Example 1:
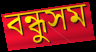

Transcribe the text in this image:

বন্ধুসম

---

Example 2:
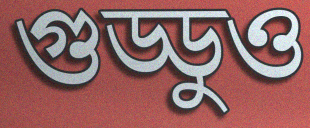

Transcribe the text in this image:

গুড্ডুও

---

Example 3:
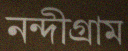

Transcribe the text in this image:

নন্দীগ্রাম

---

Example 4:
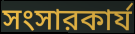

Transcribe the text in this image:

সংসারকার্য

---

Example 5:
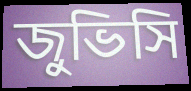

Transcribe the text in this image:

জুভিসি